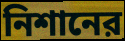
নিশানের